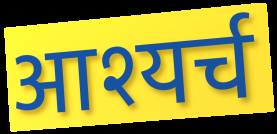
आश्यर्च